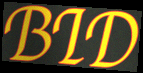
BID